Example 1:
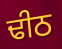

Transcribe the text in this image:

ਢੀਠ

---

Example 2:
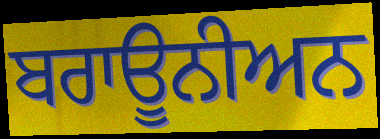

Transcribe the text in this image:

ਬਰਾਊਨੀਅਨ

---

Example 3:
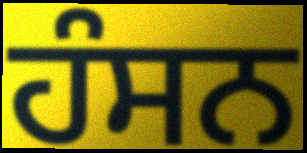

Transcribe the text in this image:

ਹੰਸਨ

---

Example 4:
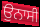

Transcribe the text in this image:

ਉਨਾਸੀ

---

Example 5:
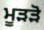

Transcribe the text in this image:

ਮੂੜੜੋ